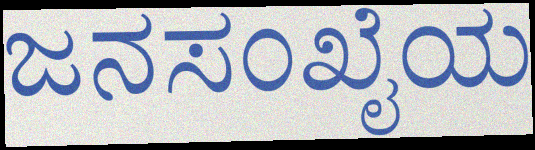
ಜನಸಂಖೈಯ